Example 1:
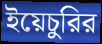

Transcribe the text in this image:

ইয়েচুরির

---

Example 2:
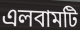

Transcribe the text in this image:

এলবামটি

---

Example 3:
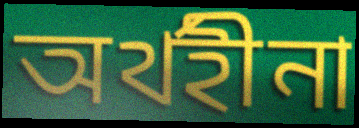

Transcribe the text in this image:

অর্থহীনা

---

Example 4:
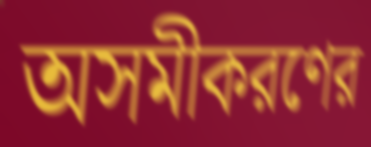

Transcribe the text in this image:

অসমীকরণের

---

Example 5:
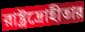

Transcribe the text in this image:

রাষ্ট্রদ্রোহীতার